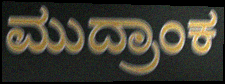
ಮುದ್ರಾಂಕ